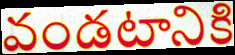
వండటానికి